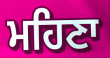
ਮਹਿਣਾ